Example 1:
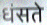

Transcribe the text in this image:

धंसते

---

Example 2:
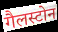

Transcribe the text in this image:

गैलस्टोन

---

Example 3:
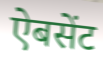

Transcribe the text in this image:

ऐबसेंट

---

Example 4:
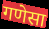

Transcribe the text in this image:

गणेसा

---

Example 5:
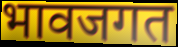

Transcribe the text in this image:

भावजगत